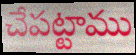
చేపట్టాము